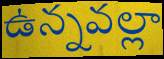
ఉన్నవల్లా